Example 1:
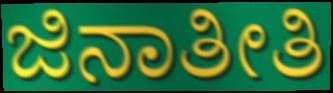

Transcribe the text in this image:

ಜಿನಾತೀತಿ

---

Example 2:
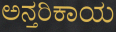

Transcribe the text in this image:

ಅನ್ತರಿಕಾಯ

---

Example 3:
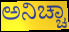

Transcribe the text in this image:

ಅನಿಚ್ಚಾ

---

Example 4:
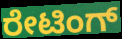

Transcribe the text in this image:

ರೇಟಿಂಗ್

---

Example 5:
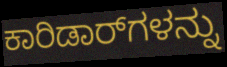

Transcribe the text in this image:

ಕಾರಿಡಾರ್‌ಗಳನ್ನು